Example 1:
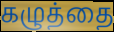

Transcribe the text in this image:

கழுத்தை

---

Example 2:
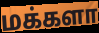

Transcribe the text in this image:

மக்களா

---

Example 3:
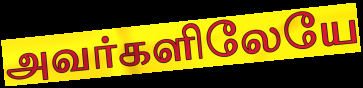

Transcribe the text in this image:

அவர்களிலேயே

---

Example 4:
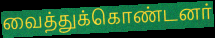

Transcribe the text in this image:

வைத்துக்கொண்டனர்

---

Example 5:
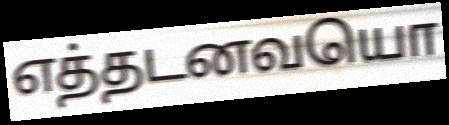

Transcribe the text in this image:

எத்தடனவயொ